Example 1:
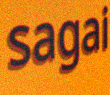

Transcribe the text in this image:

sagai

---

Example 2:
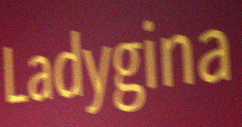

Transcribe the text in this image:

Ladygina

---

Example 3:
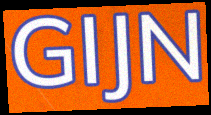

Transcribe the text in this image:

GIJN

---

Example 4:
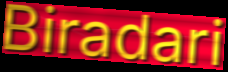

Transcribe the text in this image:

Biradari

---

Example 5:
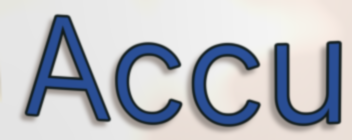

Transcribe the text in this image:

Accu